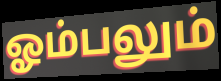
ஓம்பலும்